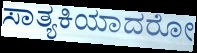
ಸಾತ್ಯಕಿಯಾದರೋ